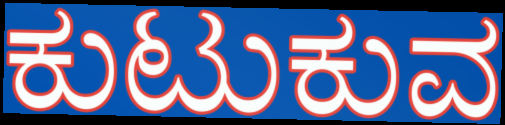
ಕುಟುಕುವ